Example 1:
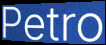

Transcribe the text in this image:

Petro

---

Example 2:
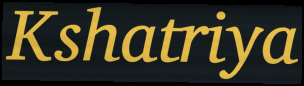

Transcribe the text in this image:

Kshatriya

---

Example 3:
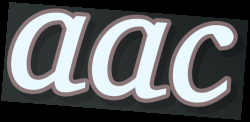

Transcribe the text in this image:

aac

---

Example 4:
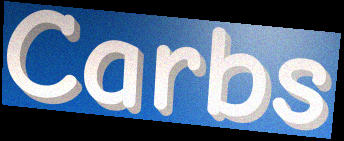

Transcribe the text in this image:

Carbs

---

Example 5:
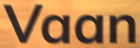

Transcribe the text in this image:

Vaan